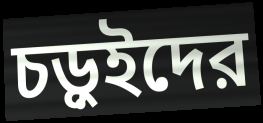
চড়ুইদের